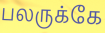
பலருக்கே